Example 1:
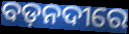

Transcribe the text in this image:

ବଡ଼ନଦୀରେ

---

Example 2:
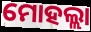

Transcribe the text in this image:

ମୋହଲ୍ଲା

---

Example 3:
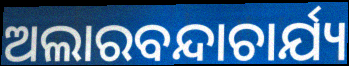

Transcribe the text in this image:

ଅଲାରବନ୍ଦାଚାର୍ଯ୍ୟ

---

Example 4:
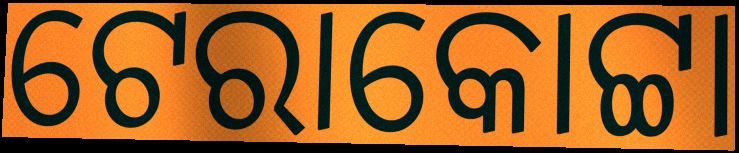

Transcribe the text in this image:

ଟେରାକୋଟ୍ଟା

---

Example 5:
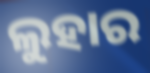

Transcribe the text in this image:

ଲୁହାର